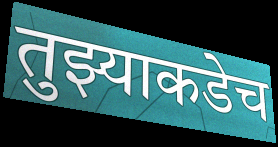
तुझ्याकडेच